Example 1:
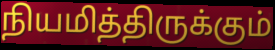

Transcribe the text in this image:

நியமித்திருக்கும்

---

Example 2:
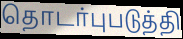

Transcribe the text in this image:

தொடர்புபடுத்தி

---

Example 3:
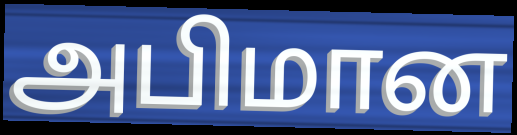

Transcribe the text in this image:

அபிமான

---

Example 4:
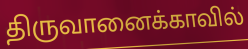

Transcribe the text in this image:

திருவானைக்காவில்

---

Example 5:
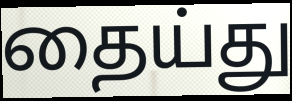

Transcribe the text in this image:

தைய்து